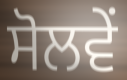
ਸੋਲਵੇਂ